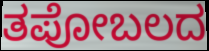
ತಪೋಬಲದ